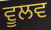
ਵੂਲਵ